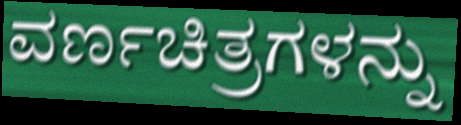
ವರ್ಣಚಿತ್ರಗಳನ್ನು